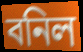
বনিল